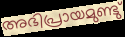
അഭിപ്രായമുണ്ടു്